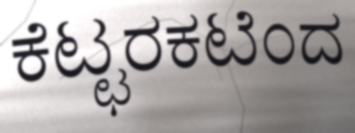
ಕೆಟ್ಟರಕಟೆಂದ